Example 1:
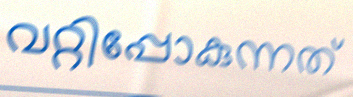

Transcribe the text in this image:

വറ്റിപ്പോകുന്നത്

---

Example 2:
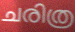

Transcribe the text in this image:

ചരിത്ര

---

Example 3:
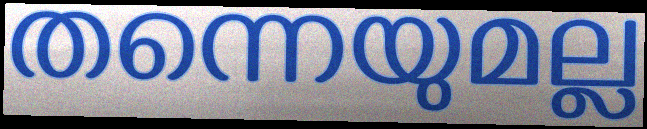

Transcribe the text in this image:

തന്നെയുമല്ല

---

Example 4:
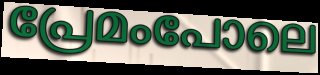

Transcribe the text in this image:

പ്രേമംപോലെ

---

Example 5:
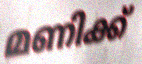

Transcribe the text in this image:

മണിക്ക്